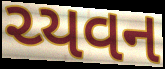
ચ્યવન